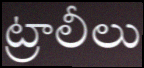
ట్రాలీలు